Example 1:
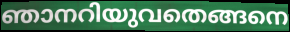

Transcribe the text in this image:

ഞാനറിയുവതെങ്ങനെ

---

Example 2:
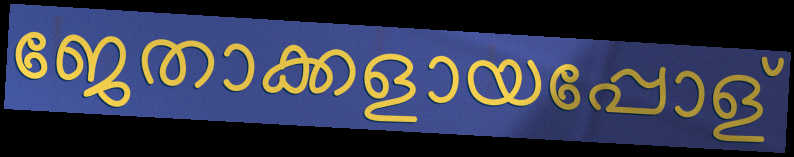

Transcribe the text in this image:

ജേതാക്കളായപ്പോള്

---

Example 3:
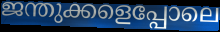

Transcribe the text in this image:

ജന്തുക്കളെപ്പോലെ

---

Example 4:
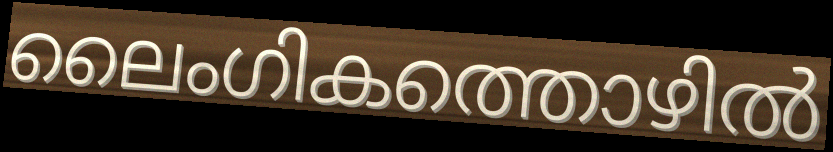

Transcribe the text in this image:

ലൈംഗികത്തൊഴിൽ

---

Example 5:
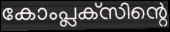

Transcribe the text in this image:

കോംപ്ലക്‌സിന്റെ